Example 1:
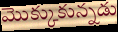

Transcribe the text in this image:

మొక్కుకున్నడు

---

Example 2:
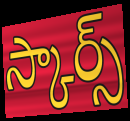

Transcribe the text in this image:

స్కార్స్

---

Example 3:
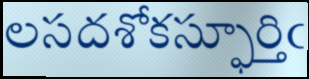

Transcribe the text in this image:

లసదశోకస్ఫూర్తిఁ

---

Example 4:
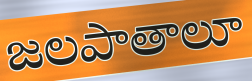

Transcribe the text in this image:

జలపాతాలూ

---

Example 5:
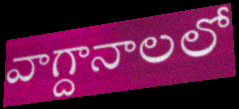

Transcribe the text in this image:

వాగ్దానాలలో